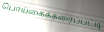
பொய்கைக்கரைப்பட்டி